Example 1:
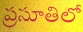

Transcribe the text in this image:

ప్రసూతిలో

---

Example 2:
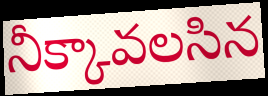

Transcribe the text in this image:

నీక్కావలసిన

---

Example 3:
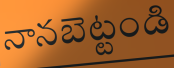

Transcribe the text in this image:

నానబెట్టండి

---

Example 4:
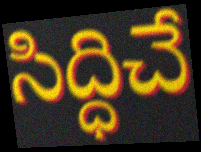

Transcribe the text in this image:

సిద్ధిచే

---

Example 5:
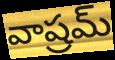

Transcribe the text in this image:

వాష్రమ్